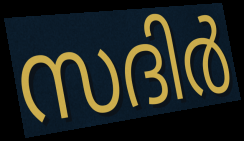
സദിർ